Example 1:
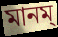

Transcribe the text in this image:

মানম্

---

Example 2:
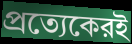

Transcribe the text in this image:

প্রত্যেকেরই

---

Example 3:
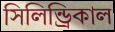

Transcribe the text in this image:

সিলিন্ড্রিকাল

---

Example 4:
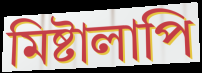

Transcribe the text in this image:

মিষ্টালাপি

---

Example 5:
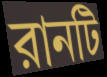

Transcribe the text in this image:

রানটি